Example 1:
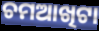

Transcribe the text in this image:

ଚମଆଖିଟା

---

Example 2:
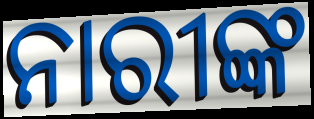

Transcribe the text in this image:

ନାରୀଙ୍କ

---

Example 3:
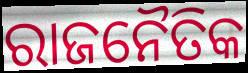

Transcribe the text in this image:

ରାଜନୈତିକ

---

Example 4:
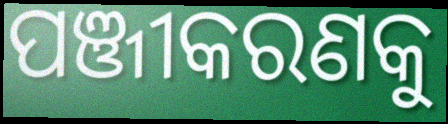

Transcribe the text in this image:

ପଞ୍ଜୀକରଣକୁ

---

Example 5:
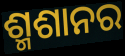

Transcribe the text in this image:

ଶ୍ମଶାନର